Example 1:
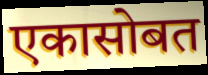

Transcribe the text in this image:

एकासोबत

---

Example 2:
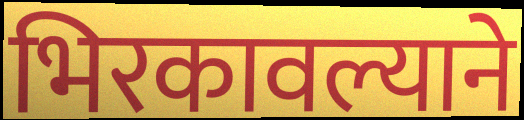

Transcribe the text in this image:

भिरकावल्याने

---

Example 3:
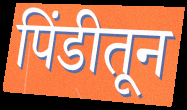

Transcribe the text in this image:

पिंडीतून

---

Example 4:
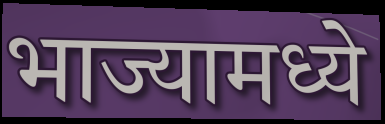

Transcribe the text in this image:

भाज्यामध्ये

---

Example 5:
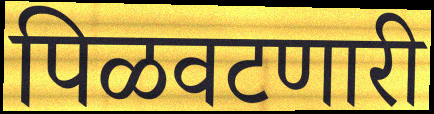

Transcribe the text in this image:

पिळवटणारी